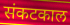
संकटकाल